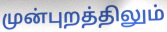
முன்புறத்திலும்